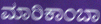
ಮಾರಿಕಾಂಬಾ